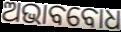
ଅଭାବବୋଧ